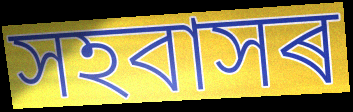
সহবাসৰ